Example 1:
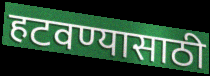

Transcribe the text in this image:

हटवण्यासाठी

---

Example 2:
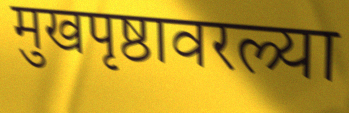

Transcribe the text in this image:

मुखपृष्ठावरल्या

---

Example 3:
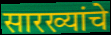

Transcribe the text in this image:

सारख्यांचे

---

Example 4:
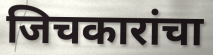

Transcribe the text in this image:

जिचकारांचा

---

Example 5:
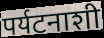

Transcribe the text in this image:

पर्यटनाशी